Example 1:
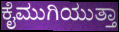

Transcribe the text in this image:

ಕೈಮುಗಿಯುತ್ತಾ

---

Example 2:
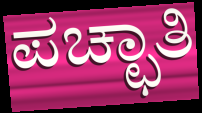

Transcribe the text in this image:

ಪಚ್ಛಾತಿ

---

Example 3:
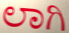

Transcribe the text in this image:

ಲಾಗಿ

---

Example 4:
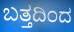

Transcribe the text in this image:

ಬತ್ತದಿಂದ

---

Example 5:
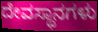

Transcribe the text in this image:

ದೇವಸ್ಥಾನಗಳು